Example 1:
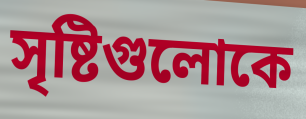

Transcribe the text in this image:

সৃষ্টিগুলোকে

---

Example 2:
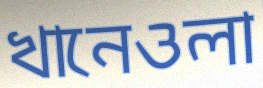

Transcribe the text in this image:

খানেওলা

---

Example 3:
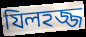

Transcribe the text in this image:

যিলহজ্জ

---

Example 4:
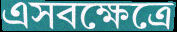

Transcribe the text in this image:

এসবক্ষেত্রে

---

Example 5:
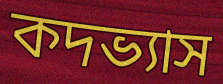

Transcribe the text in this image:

কদভ্যাস